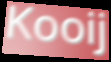
Kooij